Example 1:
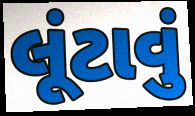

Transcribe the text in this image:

લૂંટાવું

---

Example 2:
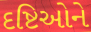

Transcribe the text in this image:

દષ્ટિઓને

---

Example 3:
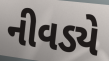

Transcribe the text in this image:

નીવડ્યે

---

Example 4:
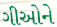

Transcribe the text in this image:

ગીઓને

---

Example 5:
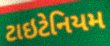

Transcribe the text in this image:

ટાઇટેનિયમ